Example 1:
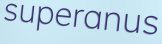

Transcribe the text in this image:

superanus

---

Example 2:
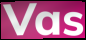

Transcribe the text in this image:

Vas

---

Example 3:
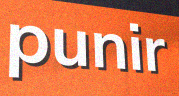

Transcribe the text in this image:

punir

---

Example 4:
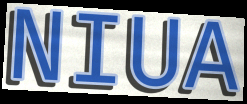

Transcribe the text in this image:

NIUA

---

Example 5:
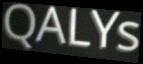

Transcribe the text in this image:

QALYs